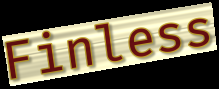
Finless